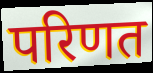
परिणत